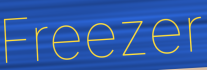
Freezer